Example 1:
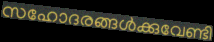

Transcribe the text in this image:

സഹോദരങ്ങൾക്കുവേണ്ടി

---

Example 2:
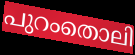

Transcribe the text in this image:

പുറംതൊലി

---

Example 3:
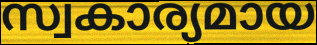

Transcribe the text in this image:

സ്വകാര്യമായ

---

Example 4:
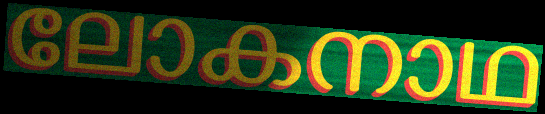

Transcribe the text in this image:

ലോകനാഥ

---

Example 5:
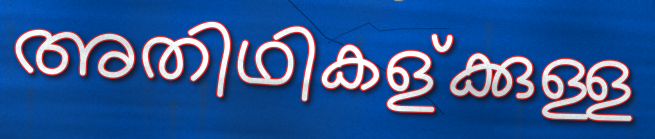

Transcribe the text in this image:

അതിഥികള്ക്കുള്ള